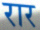
रार